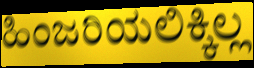
ಹಿಂಜರಿಯಲಿಕ್ಕಿಲ್ಲ